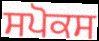
ਸਪੋਕਸ